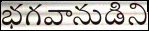
భగవానుడిని